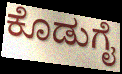
ಕೊಡುಗೈ